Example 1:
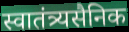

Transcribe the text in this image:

स्वातंत्र्यसैनिक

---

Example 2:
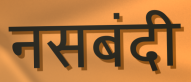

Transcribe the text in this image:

नसबंदी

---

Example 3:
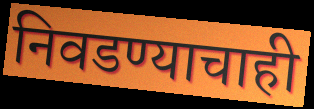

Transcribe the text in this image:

निवडण्याचाही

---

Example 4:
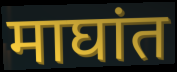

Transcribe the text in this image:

माघांत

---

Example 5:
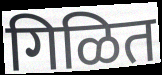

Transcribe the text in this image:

गिळित